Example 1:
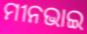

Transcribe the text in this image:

ମୀନଭାଇ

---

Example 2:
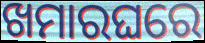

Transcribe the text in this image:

ଖମାରଘରେ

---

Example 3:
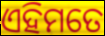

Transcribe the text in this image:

ଏହିମତେ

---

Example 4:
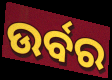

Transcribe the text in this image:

ଉର୍ବର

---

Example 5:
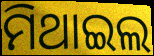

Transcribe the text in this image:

ମିଥାଇଲ